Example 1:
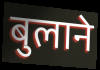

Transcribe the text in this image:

बुलाने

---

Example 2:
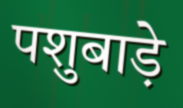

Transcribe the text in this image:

पशुबाड़े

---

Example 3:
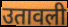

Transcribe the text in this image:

उतावली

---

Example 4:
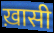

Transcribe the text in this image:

ख़ासी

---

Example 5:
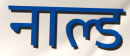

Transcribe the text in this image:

नाल्ड